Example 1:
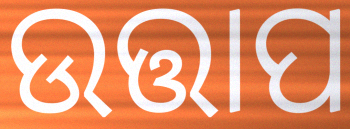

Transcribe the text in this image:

ଉତ୍ତାପ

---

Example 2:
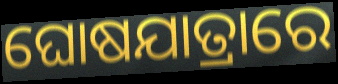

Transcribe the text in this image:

ଘୋଷଯାତ୍ରାରେ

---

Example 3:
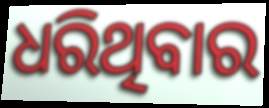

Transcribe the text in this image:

ଧରିଥିବାର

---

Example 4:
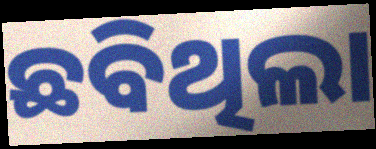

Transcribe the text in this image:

ଛବିଥିଲା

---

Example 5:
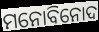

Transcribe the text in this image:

ମନୋବିନୋଦ